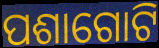
ପଶାଗୋଟି